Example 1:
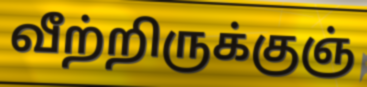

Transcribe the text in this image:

வீற்றிருக்குஞ்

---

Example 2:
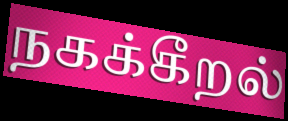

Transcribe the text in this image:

நகக்கீறல்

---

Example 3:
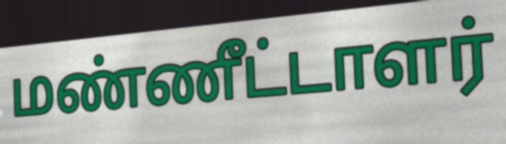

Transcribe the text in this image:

மண்ணீட்டாளர்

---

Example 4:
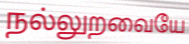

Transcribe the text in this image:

நல்லுறவையே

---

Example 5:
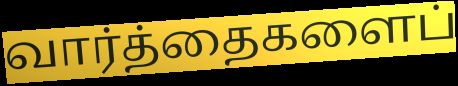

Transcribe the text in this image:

வார்த்தைகளைப்